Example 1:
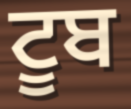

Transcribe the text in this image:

ਟੂਬ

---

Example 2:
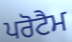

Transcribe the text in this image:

ਪਰੋਟੈਮ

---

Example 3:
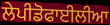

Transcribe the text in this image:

ਲੇਪੀਡੋਫਾਈਲੀਆ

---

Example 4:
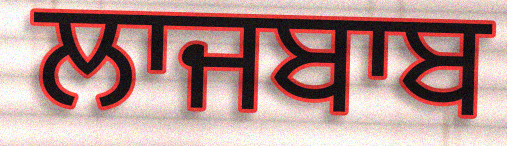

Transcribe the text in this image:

ਲਾਜਬਾਬ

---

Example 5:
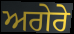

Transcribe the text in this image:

ਅਗੇਰੇ